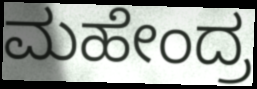
ಮಹೇಂದ್ರ